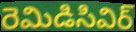
రెమిడిసివిర్